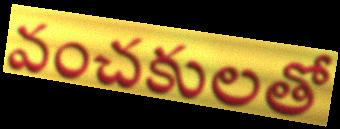
వంచకులతో